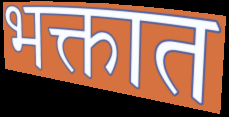
भक्तात